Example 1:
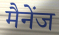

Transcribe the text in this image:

मैनेंज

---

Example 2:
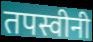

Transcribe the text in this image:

तपस्वीनी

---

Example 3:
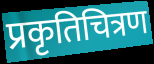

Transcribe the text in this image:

प्रकृतिचित्रण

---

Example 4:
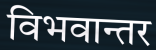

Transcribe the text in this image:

विभवान्तर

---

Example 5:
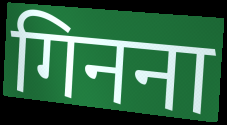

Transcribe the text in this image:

गिनना